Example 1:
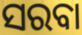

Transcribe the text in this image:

ସରବା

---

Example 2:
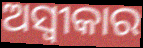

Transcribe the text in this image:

ଅସ୍ବୀକାର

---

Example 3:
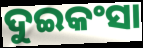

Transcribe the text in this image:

ଦୁଇକଂସା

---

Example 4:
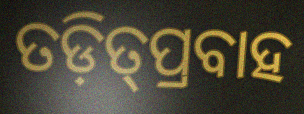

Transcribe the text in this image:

ତଡ଼ିତ୍‌ପ୍ରବାହ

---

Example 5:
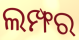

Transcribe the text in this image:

ଲମ୍ଫର